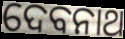
ଦେବନାଥ